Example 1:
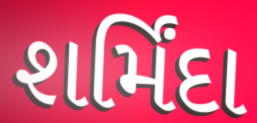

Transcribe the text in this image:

શર્મિંદા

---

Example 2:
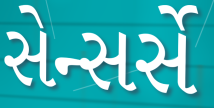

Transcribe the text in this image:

સેન્સર્સે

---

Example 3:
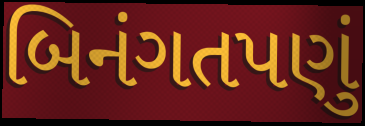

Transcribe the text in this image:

બિનંગતપણું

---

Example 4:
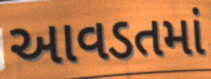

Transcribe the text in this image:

આવડતમાં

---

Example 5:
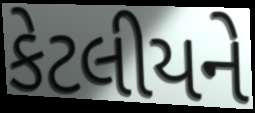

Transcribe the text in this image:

કેટલીયને